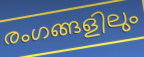
രംഗങ്ങളിലും